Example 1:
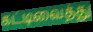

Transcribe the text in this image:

கட்டிவைத்து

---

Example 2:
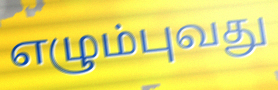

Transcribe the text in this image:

எழும்புவது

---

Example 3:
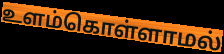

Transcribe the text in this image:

உளம்கொள்ளாமல்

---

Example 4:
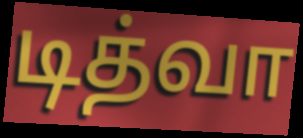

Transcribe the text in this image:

டித்வா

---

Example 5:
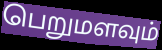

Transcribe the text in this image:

பெறுமளவும்